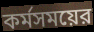
কর্মসময়ের